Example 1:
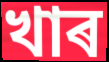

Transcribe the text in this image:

খাৰ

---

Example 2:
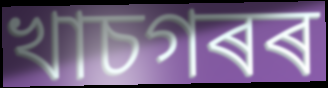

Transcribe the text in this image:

খাচগৰৰ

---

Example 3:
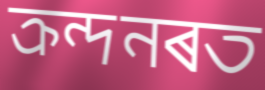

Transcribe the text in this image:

ক্ৰন্দনৰত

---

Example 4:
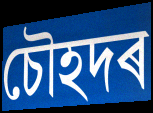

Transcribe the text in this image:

চৌহদৰ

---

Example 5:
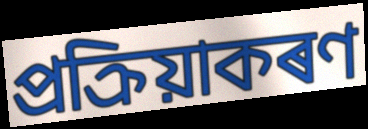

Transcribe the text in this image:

প্ৰক্ৰিয়াকৰণ